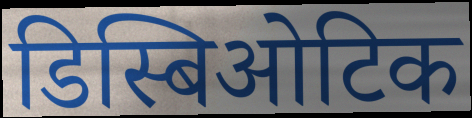
डिस्बिओटिक